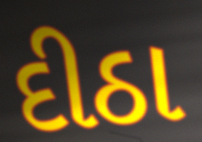
દીઠા